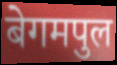
बेगमपुल